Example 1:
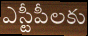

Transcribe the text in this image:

ఎస్టీపీలకు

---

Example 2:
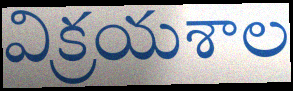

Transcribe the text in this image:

విక్రయశాల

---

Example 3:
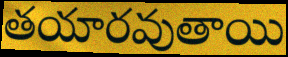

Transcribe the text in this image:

తయారవుతాయి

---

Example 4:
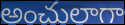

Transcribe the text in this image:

అంచులాగా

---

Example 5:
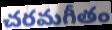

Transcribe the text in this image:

చరమగీతం